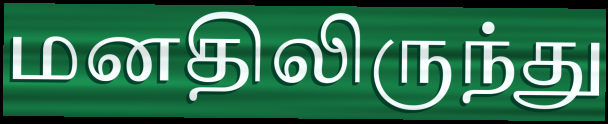
மனதிலிருந்து